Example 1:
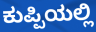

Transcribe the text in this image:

ಕುಪ್ಪಿಯಲ್ಲಿ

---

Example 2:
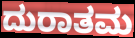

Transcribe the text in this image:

ದುರಾತಮ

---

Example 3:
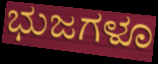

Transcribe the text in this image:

ಭುಜಗಳೂ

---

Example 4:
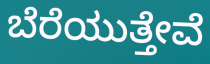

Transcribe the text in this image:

ಬೆರೆಯುತ್ತೇವೆ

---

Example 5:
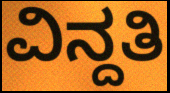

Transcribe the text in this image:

ವಿನ್ದತಿ